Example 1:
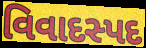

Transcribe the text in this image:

વિવાદસ્પદ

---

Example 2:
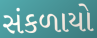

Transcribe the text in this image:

સંકળાયો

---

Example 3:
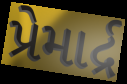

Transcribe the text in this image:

પ્રેમાર્દ્ર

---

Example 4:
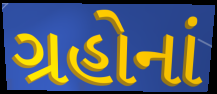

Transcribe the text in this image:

ગ્રહોનાં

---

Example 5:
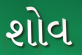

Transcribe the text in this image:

શોવ